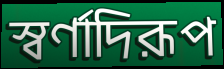
স্বর্ণাদিরূপ